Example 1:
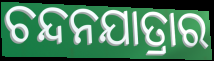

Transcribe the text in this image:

ଚନ୍ଦନଯାତ୍ରାର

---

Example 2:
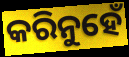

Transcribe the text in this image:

କରିନୁହେଁ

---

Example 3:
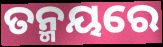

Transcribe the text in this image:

ତନ୍ମୟରେ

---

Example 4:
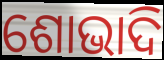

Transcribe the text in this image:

ଶୋଭାଦି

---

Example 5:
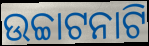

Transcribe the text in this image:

ଉଚ୍ଚାଟନାଟି